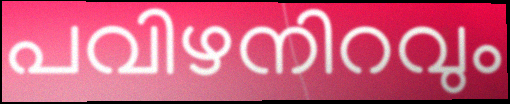
പവിഴനിറവും